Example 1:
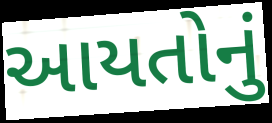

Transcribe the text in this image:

આયતોનું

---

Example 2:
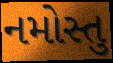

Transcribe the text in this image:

નમોસ્તુ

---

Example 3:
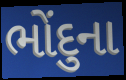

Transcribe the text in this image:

ભોંદુના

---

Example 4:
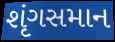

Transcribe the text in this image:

શૃંગસમાન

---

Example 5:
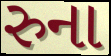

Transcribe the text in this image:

રુના